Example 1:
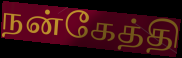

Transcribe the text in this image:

நன்கேத்தி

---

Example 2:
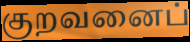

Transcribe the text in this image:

குறவனைப்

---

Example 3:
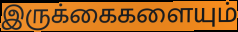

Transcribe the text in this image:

இருக்கைகளையும்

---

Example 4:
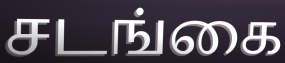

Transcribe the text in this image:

சடங்கை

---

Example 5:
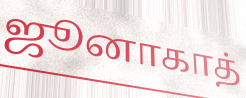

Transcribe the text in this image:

ஜூனாகாத்